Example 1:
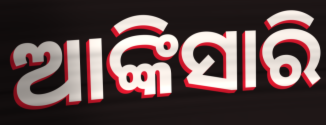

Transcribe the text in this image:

ଆଙ୍କିସାରି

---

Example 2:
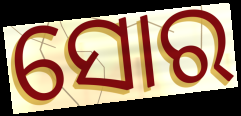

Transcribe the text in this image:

ସୋର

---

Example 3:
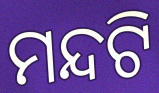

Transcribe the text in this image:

ମନ୍ଦଟି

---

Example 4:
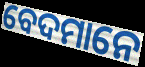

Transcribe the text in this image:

ବେଦମାନେ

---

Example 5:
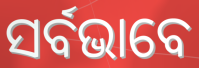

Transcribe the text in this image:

ସର୍ବଭାବେ